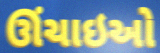
ઊંચાઇઓ